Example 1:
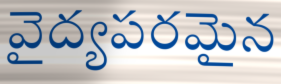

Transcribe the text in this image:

వైద్యపరమైన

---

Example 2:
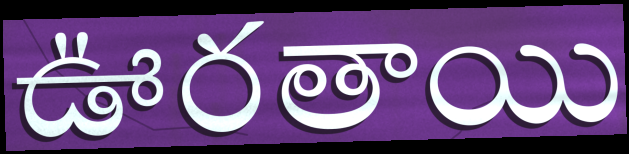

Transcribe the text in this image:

ఊరతాయి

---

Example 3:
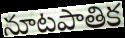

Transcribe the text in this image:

నూటపాతిక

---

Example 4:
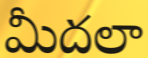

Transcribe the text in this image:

మీదలా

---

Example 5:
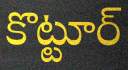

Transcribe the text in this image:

కొట్టూర్